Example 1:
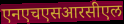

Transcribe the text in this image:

एनएचएसआरसीएल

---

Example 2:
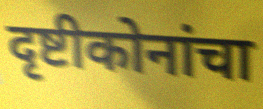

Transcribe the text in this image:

दृष्टीकोनांचा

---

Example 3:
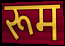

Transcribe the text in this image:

रूम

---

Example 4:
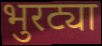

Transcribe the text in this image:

भुरट्या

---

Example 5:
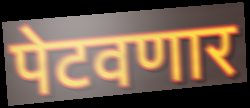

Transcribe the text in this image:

पेटवणार